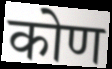
कोण